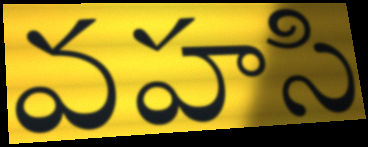
వహసి